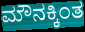
ಮೌನಕ್ಕಿಂತ